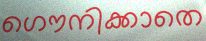
ഗൌനിക്കാതെ